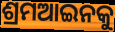
ଶ୍ରମଆଇନକୁ